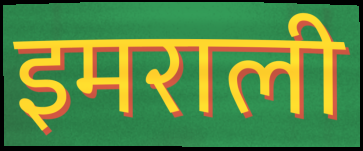
इमराली